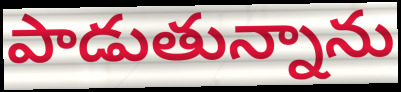
పాడుతున్నాను